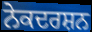
ਨੇਕਦਰਸ਼ਨ